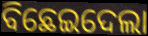
ବିଛେଇଦେଲା